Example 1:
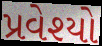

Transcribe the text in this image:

પ્રવેશ્યો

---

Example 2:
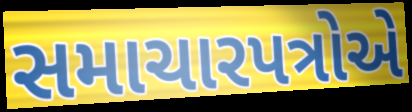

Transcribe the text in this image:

સમાચારપત્રોએ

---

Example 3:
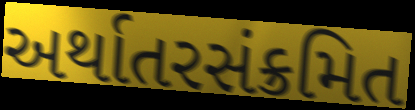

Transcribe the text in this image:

અર્થાતરસંક્રમિત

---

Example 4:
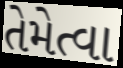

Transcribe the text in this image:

તેમેત્વા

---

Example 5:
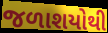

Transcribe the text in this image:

જળાશયોથી